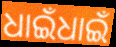
ଧାଇଁଧାଇଁ